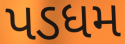
પડધમ